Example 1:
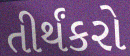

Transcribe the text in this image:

તીર્થંકરો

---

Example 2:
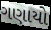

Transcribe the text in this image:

ગણાયો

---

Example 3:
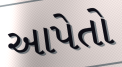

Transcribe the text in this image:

આપેતો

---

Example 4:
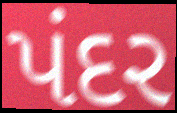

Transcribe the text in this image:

પંદર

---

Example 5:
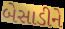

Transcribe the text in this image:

બેસાડીને